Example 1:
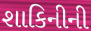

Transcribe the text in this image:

શાકિનીની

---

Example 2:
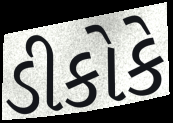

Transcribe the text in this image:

ડીકોકે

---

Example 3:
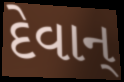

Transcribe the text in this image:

દેવાન્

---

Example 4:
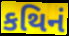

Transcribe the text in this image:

કથિનં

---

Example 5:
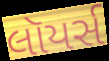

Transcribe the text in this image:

લૉયર્સ